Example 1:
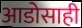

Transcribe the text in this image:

आडोसाही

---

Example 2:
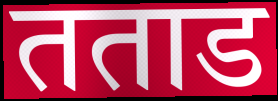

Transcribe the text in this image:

तताड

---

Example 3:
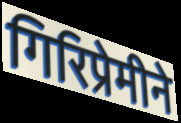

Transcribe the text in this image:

गिरिप्रेमीने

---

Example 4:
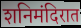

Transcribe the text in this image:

शनिमंदिरात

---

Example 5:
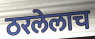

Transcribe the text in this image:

ठरलेलाच